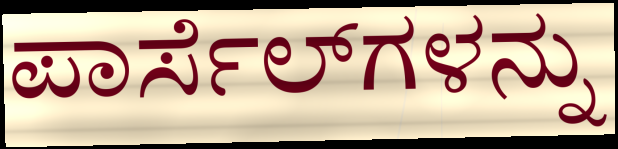
ಪಾರ್ಸೆಲ್‌ಗಳನ್ನು